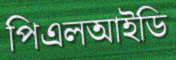
পিএলআইডি